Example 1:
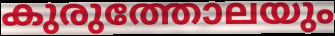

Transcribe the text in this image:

കുരുത്തോലയും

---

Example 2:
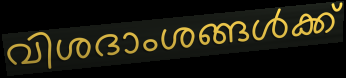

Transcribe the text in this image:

വിശദാംശങ്ങൾക്ക്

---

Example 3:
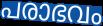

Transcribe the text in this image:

പരാഭവം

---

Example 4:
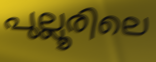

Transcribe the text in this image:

പുല്ലൂരിലെ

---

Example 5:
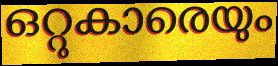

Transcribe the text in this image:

ഒറ്റുകാരെയും